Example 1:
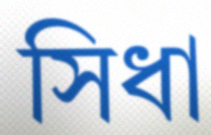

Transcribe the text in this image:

সিধা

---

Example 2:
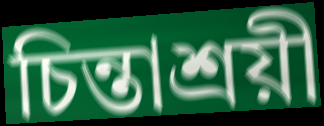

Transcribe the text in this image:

চিন্তাশ্রয়ী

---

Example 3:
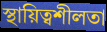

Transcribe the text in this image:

স্থায়িত্বশীলতা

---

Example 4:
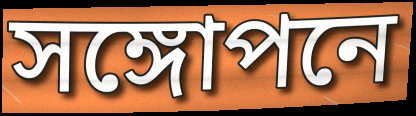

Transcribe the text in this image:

সঙ্গোপনে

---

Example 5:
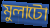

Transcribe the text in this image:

মুলাটো